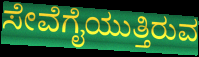
ಸೇವೆಗೈಯುತ್ತಿರುವ